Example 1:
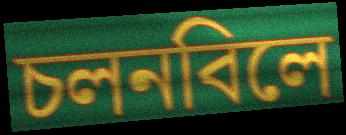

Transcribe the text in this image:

চলনবিলে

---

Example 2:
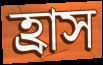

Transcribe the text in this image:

হ্রাস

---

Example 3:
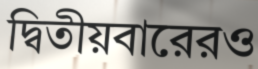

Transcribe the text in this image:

দ্বিতীয়বারেরও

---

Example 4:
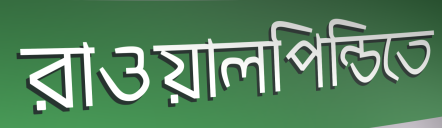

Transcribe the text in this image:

রাওয়ালপিন্ডিতে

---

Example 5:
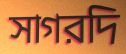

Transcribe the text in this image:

সাগরদি